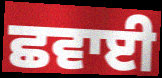
ਛਵਾਈ